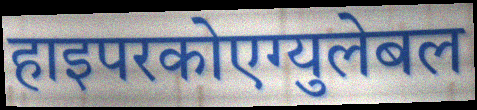
हाइपरकोएग्युलेबल